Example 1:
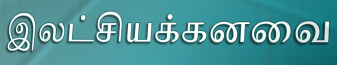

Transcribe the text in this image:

இலட்சியக்கனவை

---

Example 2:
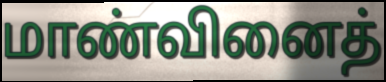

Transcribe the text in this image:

மாண்வினைத்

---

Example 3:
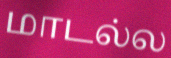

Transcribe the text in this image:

மாடல்ல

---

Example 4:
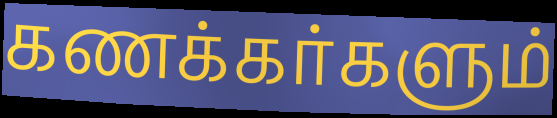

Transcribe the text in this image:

கணக்கர்களும்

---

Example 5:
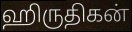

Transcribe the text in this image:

ஹிருதிகன்